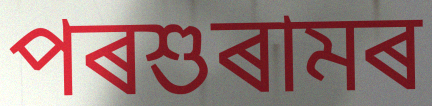
পৰশুৰামৰ